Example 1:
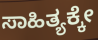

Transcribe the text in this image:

ಸಾಹಿತ್ಯಕ್ಕೇ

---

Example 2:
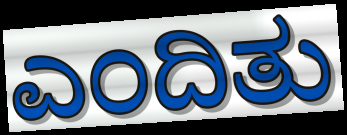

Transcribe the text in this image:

ಎಂದಿತು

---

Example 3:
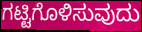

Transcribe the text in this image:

ಗಟ್ಟಿಗೊಳಿಸುವುದು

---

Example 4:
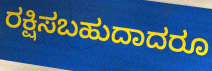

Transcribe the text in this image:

ರಕ್ಷಿಸಬಹುದಾದರೂ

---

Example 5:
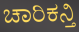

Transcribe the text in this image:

ಚಾರಿಕನ್ತಿ